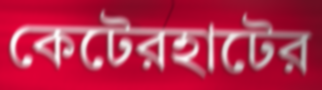
কেটেরহাটের